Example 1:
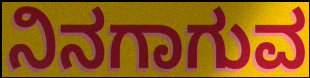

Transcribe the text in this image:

ನಿನಗಾಗುವ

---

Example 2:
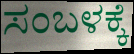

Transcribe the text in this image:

ಸಂಬಳಕ್ಕೆ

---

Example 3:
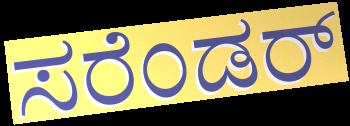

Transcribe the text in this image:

ಸರೆಂಡರ್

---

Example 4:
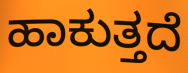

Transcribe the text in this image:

ಹಾಕುತ್ತದೆ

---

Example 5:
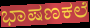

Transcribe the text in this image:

ಭಾಷಣಕಲೆ